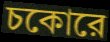
চকোরে